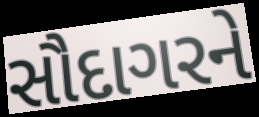
સૌદાગરને